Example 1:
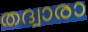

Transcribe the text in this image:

തദ്വാരാ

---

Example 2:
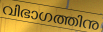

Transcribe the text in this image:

വിഭാഗത്തിനു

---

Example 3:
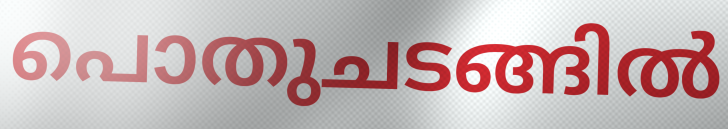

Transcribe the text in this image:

പൊതുചടങ്ങിൽ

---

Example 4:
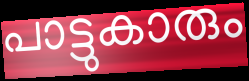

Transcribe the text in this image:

പാട്ടുകാരും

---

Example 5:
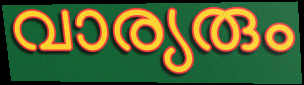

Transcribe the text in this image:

വാര്യരും